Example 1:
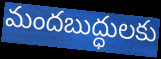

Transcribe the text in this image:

మందబుద్ధులకు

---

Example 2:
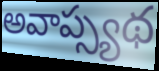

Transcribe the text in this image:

అవాప్స్యథ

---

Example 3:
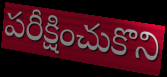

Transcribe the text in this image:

పరీక్షించుకొని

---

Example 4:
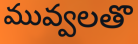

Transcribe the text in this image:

మువ్వలతొ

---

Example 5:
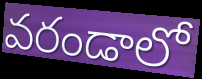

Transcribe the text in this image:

వరండాలో